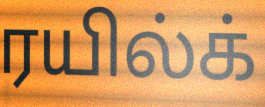
ரயில்க்